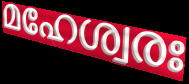
മഹേശ്വരഃ